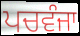
ਪਚਵੰਜਾ